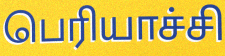
பெரியாச்சி